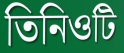
তিনিওটি